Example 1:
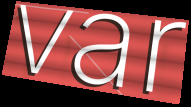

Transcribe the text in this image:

var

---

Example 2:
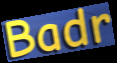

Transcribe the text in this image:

Badr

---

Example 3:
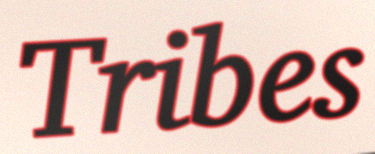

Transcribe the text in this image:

Tribes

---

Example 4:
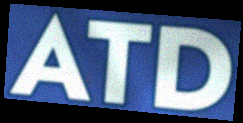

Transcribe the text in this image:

ATD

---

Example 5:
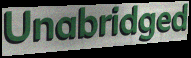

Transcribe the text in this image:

Unabridged